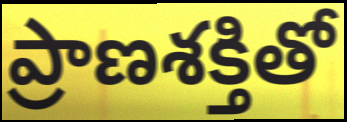
ప్రాణశక్తితో